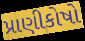
પ્રાણીકોષો